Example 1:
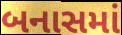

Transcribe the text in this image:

બનાસમાં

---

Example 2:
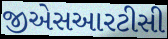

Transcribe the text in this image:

જીએસઆરટીસી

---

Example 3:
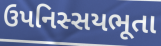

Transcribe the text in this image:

ઉપનિસ્સયભૂતા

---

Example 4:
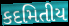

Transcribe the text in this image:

કદમિતીય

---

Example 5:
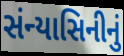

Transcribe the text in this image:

સંન્યાસિનીનું